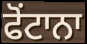
ਫੋਂਟਾਨਾ